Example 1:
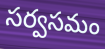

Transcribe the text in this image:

సర్వసమం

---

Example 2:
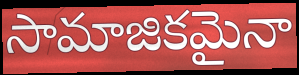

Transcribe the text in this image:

సామాజికమైనా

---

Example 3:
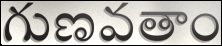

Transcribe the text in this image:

గుణవతాం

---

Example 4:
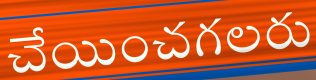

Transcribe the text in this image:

చేయించగలరు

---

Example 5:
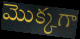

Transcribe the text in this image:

మొక్కగా